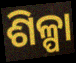
ଶିଳ୍ପା